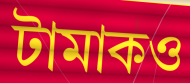
টামাকও